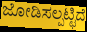
ಜೋಡಿಸಲ್ಪಟ್ಟಿದೆ